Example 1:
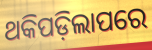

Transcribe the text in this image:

ଥକିପଡ଼ିଲାପରେ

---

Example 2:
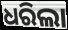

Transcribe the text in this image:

ଧରିଲା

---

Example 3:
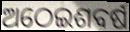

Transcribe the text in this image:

ଅଠେଇଶବର୍ଷ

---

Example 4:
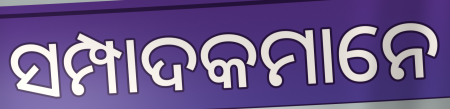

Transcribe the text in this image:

ସମ୍ପାଦକମାନେ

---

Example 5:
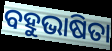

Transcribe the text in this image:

ବହୁଭାଷିତା